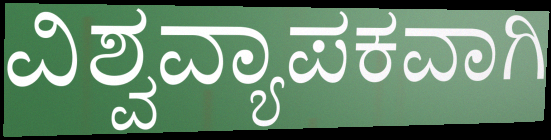
ವಿಶ್ವವ್ಯಾಪಕವಾಗಿ